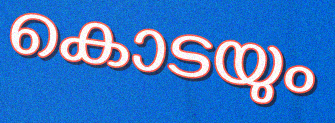
കൊടയും